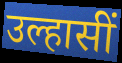
उल्हासीं